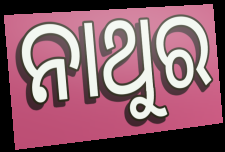
ନାଥୁର